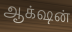
ஆக்‌ஷன்